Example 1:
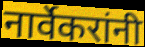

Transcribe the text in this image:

नार्वेकरांनी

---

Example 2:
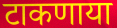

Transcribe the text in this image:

टाकणाया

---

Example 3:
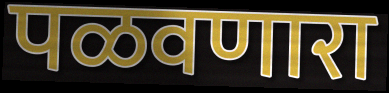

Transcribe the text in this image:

पळवणारा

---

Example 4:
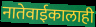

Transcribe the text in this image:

नातेवाईकालाही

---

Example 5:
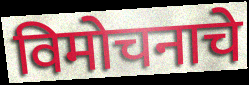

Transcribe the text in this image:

विमोचनाचे